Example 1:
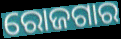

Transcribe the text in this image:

ରୋଜଗାର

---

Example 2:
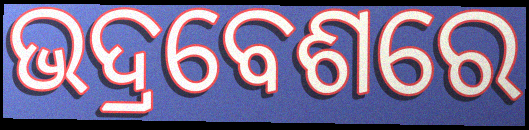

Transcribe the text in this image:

ଭଦ୍ରବେଶରେ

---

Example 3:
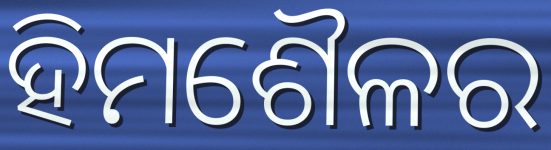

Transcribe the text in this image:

ହିମଶୈଳର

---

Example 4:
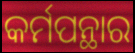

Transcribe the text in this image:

କର୍ମପନ୍ଥାର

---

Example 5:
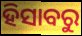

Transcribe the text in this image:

ହିସାବରୁ